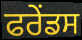
ਫਰੇਂਡਸ